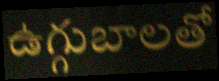
ఉగ్గుబాలతో